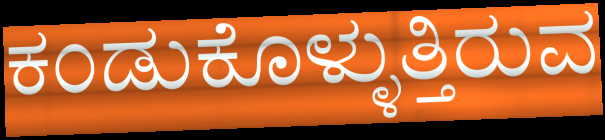
ಕಂಡುಕೊಳ್ಳುತ್ತಿರುವ